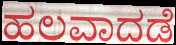
ಹಲವಾದಡೆ